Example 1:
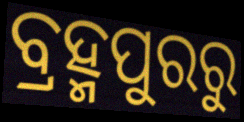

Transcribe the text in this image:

ବ୍ରହ୍ମପୁରରୁ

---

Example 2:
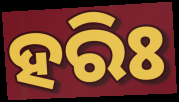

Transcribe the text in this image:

ହରିଃ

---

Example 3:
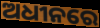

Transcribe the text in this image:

ଅଧୀନରେ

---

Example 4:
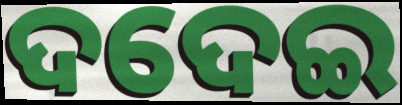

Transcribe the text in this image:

ଦଦେଇ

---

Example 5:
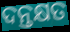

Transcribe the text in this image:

ଦନ୍ତକ୍ଷତ